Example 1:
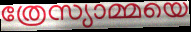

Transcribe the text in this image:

ത്രേസ്യാമ്മയെ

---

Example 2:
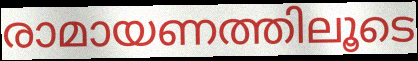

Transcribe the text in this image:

രാമായണത്തിലൂടെ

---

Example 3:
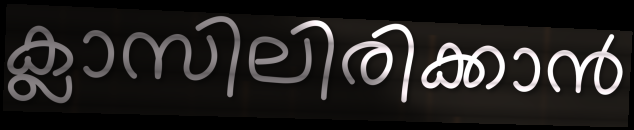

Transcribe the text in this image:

ക്ലാസിലിരിക്കാൻ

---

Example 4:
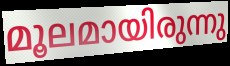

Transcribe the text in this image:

മൂലമായിരുന്നു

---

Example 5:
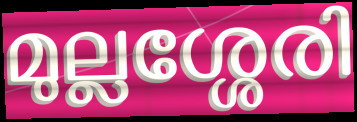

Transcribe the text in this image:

മുല്ലശ്ശേരി